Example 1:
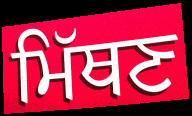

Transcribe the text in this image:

ਮਿੱਥਣ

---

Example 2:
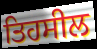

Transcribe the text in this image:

ਤਿਹਸੀਲ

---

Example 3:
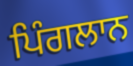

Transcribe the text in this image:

ਪਿੰਗਲਾਨ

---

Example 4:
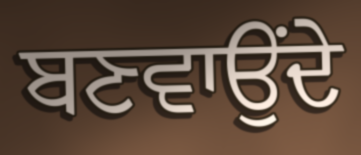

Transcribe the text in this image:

ਬਣਵਾਉਂਦੇ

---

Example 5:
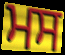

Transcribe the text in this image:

ਮਸ